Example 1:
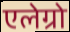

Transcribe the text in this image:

एलेग्रो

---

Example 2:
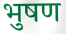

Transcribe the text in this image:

भुषण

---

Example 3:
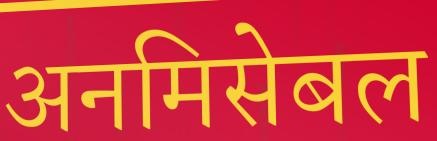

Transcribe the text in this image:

अनमिसेबल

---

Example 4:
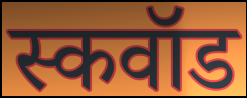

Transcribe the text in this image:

स्कवॉड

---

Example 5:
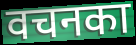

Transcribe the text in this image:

वचनका